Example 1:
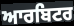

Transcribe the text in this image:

ਆਰਬਿਟਰ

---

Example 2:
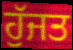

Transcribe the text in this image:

ਹੁੱਜਤ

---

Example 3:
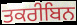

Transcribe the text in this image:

ਤਕਰੀਬਿਨ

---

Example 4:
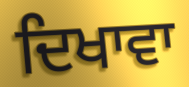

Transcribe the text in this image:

ਦਿਖਾਵਾ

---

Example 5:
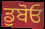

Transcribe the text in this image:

ਡੁਬੋਓ